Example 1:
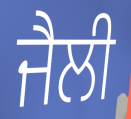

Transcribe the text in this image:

ਜੈਲੀ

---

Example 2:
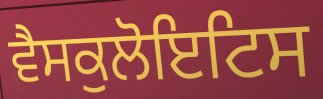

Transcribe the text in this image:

ਵੈਸਕੁਲੋਇਟਿਸ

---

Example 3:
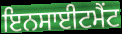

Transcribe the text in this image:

ਇਨਸਾਈਟਮੈਂਟ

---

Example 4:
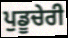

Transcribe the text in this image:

ਪੁਡੂਚੇਰੀ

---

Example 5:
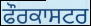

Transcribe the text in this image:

ਫੌਰਕਾਸਟਰ